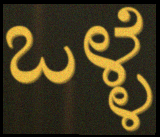
ಒಳ್ಳೆ